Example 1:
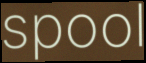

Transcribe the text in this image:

spool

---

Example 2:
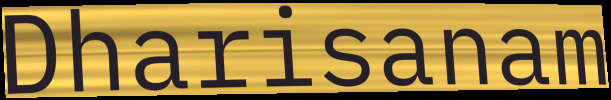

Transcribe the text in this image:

Dharisanam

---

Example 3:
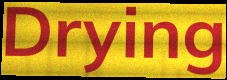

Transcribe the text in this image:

Drying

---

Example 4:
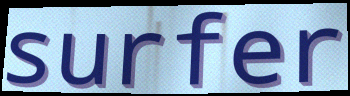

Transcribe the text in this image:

surfer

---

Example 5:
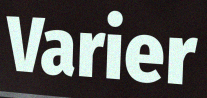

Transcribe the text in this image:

Varier